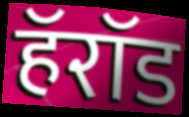
हॅरॉड